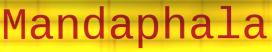
Mandaphala